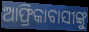
ଆଫ୍ରିକାବାସୀଙ୍କୁ